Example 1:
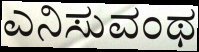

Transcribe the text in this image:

ಎನಿಸುವಂಥ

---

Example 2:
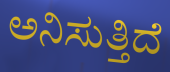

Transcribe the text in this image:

ಅನಿಸುತ್ತಿದೆ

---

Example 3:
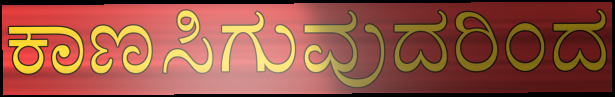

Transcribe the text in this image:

ಕಾಣಸಿಗುವುದರಿಂದ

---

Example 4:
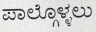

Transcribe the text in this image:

ಪಾಲ್ಗೊಳ್ಳಲು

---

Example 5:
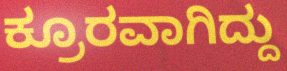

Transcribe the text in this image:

ಕ್ರೂರವಾಗಿದ್ದು